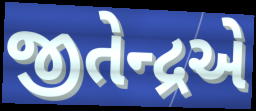
જીતેન્દ્રએ